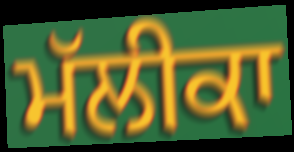
ਮੱਲੀਕਾ